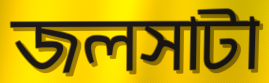
জলসাটা